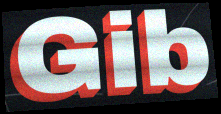
Gib